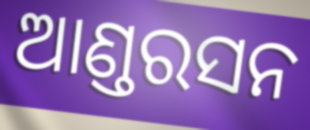
ଆଣ୍ଡରସନ